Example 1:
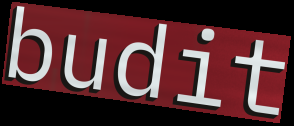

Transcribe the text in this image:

budit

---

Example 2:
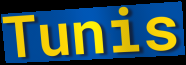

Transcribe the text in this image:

Tunis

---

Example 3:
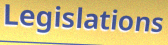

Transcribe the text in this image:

Legislations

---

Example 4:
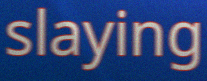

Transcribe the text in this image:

slaying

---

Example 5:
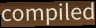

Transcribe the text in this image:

compiled